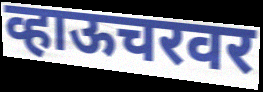
व्हाऊचरवर